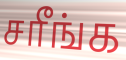
சரீங்க